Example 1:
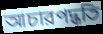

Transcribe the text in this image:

আচারপদ্ধতি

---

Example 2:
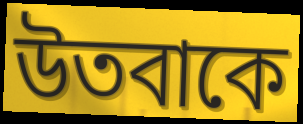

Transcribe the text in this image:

উতবাকে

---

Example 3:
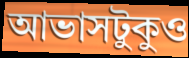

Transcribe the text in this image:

আভাসটুকুও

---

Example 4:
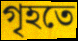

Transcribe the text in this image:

গৃহতে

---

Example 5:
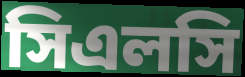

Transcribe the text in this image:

সিএলসি